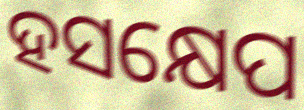
ହସକ୍ଷେପ